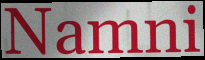
Namni